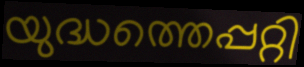
യുദ്ധത്തെപ്പറ്റി